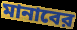
মানাবের